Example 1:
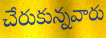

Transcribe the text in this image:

చేరుకున్నవారు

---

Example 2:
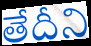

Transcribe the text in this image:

తేదీని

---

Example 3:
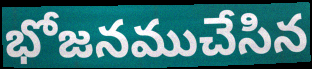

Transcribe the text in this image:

భోజనముచేసిన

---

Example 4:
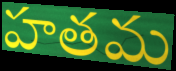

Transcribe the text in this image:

హతమ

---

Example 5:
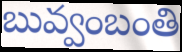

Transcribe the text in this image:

బువ్వంబంతి